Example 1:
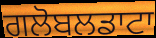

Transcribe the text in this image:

ਗਲੋਬਲਡਾਟਾ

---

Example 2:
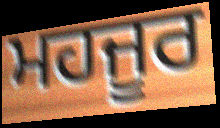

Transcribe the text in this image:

ਮਹਜੂਰ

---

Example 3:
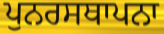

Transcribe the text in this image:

ਪੁਨਰਸਥਾਪਨਾ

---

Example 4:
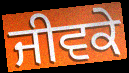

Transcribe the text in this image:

ਜੀਵਕੇ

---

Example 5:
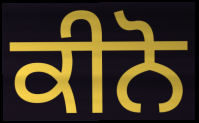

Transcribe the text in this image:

ਕੀਨੋ